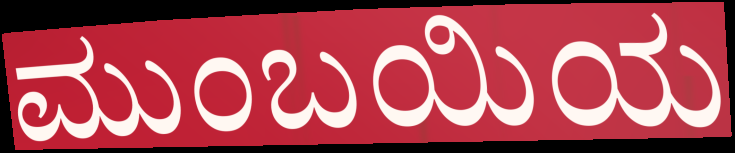
ಮುಂಬಯಿಯ